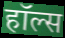
हॉल्स